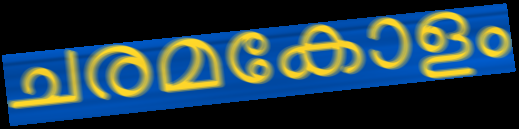
ചരമകോളം